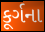
કૂર્ગના